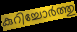
കുറിച്ചോർത്തു